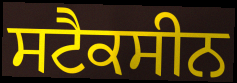
ਸਟੈਕਸੀਨ